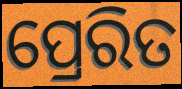
ପ୍ରେରିତ